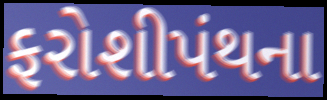
ફરોશીપંથના